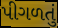
પીગળતું